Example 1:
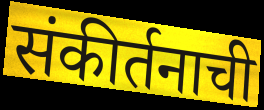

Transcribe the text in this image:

संकीर्तनाची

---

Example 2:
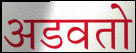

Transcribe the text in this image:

अडवतो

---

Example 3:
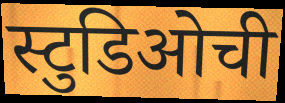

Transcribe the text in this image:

स्टुडिओची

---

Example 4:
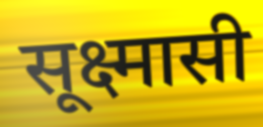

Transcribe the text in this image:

सूक्ष्मासी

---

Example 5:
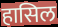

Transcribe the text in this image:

हासिल